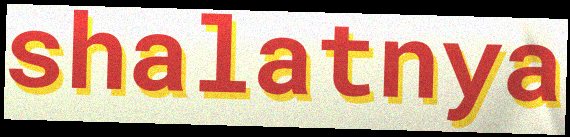
shalatnya